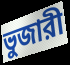
ভুজারী